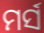
ମର୍ସ